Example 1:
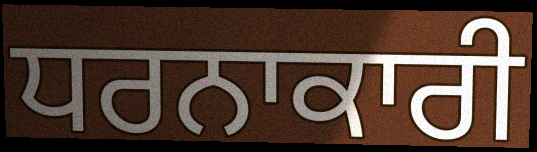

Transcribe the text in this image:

ਧਰਨਾਕਾਰੀ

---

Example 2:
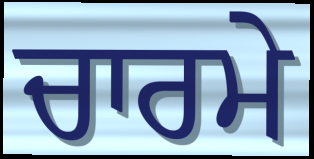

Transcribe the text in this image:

ਚਾਰਮੇ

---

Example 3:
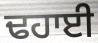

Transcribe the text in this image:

ਢਹਾਈ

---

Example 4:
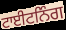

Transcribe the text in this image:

ਟਾਈਟਨਿੰਗ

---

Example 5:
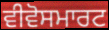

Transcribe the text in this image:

ਵੀਵੋਸਮਾਰਟ